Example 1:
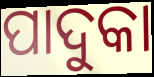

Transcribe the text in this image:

ପାଦୁକା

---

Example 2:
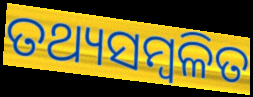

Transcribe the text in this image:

ତଥ୍ୟସମ୍ବଳିତ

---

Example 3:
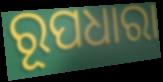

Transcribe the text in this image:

ରୂପଧାରା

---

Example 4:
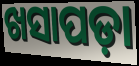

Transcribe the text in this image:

ଖସାପଡ଼ା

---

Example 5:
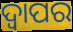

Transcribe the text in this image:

ଦ୍ୱାପର